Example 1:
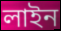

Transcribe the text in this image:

লাইন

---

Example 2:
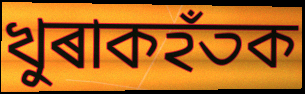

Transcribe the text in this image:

খুৰাকহঁতক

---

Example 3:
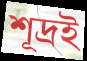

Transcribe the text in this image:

শূদ্ৰই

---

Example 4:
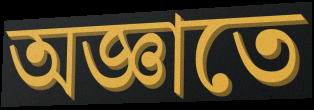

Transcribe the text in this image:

অজ্ঞাতে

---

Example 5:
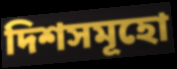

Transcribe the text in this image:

দিশসমূহো